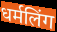
धर्मलिंग